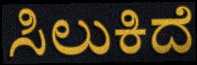
ಸಿಲುಕಿದೆ